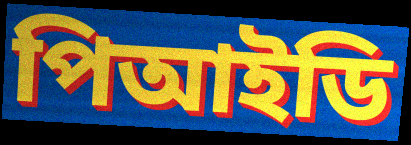
পিআইডি